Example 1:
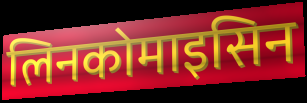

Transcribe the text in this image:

लिनकोमाइसिन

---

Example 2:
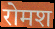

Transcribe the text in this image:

रोमश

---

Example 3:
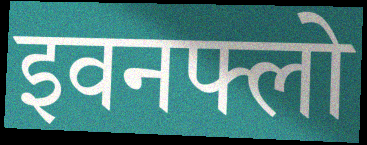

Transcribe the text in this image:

इवनफ्लो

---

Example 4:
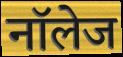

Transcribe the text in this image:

नॉलेज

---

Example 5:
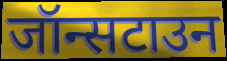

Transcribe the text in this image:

जॉन्सटाउन